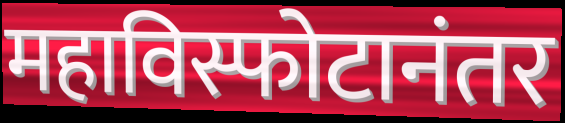
महाविस्फोटानंतर